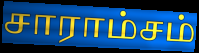
சாராம்சம்